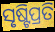
ସୃଷ୍ଟିପ୍ରତି